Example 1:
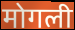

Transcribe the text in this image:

मोगली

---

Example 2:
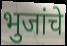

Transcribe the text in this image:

भुजांचे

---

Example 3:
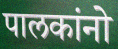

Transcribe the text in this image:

पालकांनो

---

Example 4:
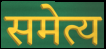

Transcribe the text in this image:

समेत्य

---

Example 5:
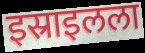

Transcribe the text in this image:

इस्राइलला